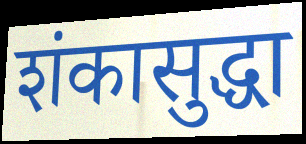
शंकासुद्धा